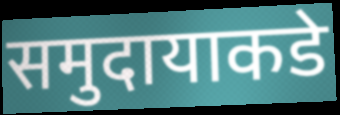
समुदायाकडे